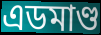
এডমাণ্ড